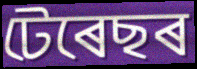
টেৰেছৰ